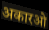
अकारओ